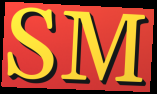
SM